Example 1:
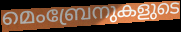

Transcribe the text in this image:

മെംബ്രേനുകളുടെ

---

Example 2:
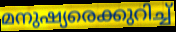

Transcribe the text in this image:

മനുഷ്യരെക്കുറിച്ച്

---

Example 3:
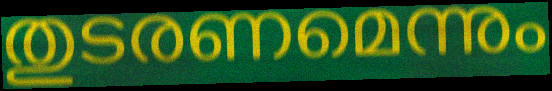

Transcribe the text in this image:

തുടരണമെന്നും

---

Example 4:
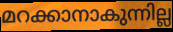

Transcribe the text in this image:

മറക്കാനാകുന്നില്ല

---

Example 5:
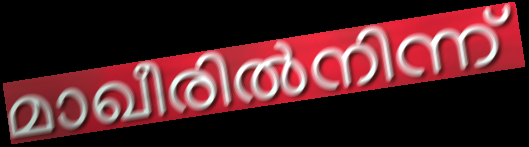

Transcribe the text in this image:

മാഖീരിൽനിന്ന്